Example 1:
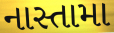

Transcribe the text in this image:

નાસ્તામા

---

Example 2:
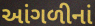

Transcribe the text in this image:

આંગળીનાં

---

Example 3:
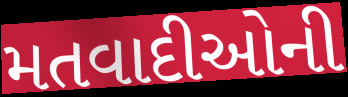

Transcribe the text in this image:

મતવાદીઓની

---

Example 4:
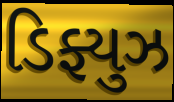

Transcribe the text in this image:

ડિફ્યુઝ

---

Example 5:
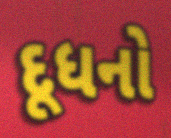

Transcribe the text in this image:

દૂધનો